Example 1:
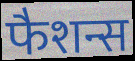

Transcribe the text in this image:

फैशन्स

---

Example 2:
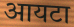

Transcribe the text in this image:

आयटा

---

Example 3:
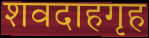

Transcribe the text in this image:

शवदाहगृह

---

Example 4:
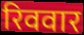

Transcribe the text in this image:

रिववार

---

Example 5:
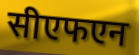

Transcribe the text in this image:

सीएफएन